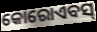
କୋରୋଏବସ୍